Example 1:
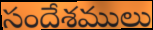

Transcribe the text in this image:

సందేశములు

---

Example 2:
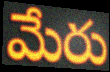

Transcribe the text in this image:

మేరు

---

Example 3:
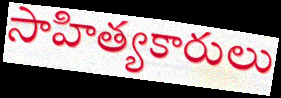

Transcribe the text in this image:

సాహిత్యకారులు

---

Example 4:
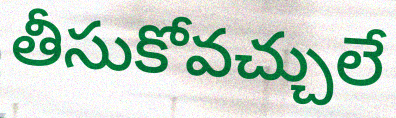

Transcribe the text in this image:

తీసుకోవచ్చులే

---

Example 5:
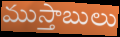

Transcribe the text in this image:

ముస్తాబులు